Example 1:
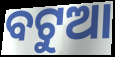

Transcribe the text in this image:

ବଟୁଆ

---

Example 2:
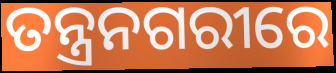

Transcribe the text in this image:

ତନ୍ତ୍ରନଗରୀରେ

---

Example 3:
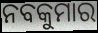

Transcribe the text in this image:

ନବକୁମାର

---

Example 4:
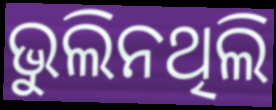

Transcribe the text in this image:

ଭୁଲିନଥିଲି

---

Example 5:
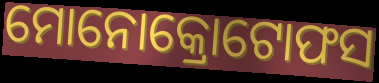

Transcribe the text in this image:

ମୋନୋକ୍ରୋଟୋଫସ